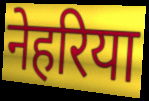
नेहरिया